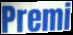
Premi